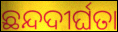
ଛନ୍ଦଦୀର୍ଘତା